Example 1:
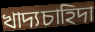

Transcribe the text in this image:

খাদ্যচাহিদা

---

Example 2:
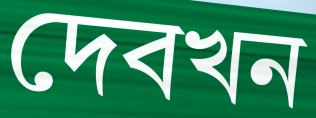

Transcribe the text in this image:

দেবখন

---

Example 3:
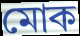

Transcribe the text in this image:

মোক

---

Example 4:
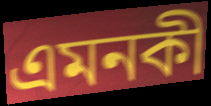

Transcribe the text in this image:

এমনকী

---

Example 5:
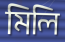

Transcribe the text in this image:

মিলি